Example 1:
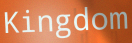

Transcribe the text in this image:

Kingdom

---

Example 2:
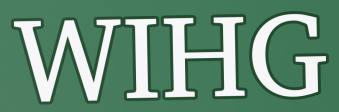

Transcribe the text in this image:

WIHG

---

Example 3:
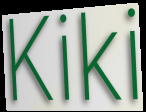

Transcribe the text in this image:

Kiki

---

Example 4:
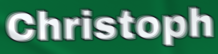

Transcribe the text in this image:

Christoph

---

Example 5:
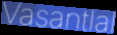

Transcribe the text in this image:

Vasantlal